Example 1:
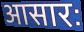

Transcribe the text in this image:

आसारः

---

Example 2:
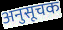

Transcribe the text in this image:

अनुसूचक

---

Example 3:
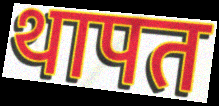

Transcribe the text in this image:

थापत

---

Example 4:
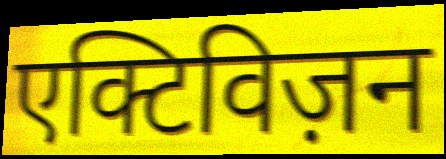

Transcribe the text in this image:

एक्टिविज़न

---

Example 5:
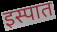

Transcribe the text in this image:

इस्पात